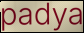
padya